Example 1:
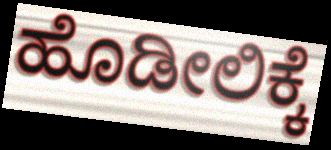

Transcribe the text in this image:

ಹೊಡೀಲಿಕ್ಕೆ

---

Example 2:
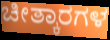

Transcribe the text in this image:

ಚೀತ್ಕಾರಗಳ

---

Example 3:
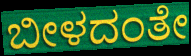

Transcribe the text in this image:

ಬೀಳದಂತೇ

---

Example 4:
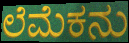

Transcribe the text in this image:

ಲೆಮೆಕನು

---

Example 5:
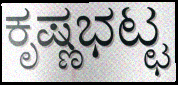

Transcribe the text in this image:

ಕೃಷ್ಣಭಟ್ಟ